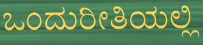
ಒಂದುರೀತಿಯಲ್ಲಿ